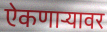
ऐकणार्‍यावर